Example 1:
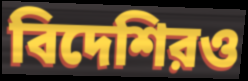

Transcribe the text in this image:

বিদেশিরও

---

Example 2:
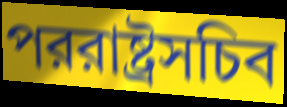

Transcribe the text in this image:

পররাষ্ট্রসচিব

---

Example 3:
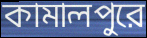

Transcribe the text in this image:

কামালপুরে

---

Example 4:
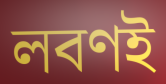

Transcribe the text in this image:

লবণই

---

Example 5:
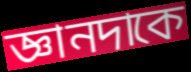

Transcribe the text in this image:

জ্ঞানদাকে